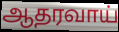
ஆதரவாய்